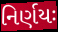
નિર્ણયઃ